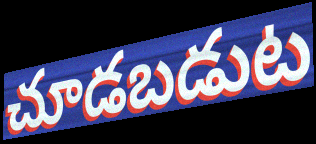
చూడబడుట